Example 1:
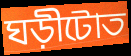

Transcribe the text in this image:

ঘড়ীটোত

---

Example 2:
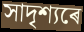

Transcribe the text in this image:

সাদৃশ্যৰে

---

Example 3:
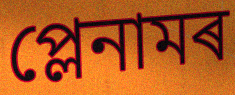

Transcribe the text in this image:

প্লেনামৰ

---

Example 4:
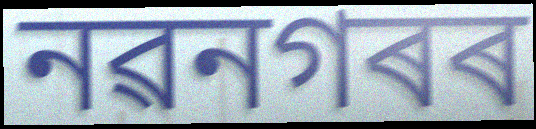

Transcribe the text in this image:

নৱনগৰৰ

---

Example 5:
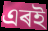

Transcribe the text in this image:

এৰই